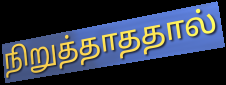
நிறுத்தாததால்